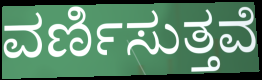
ವರ್ಣಿಸುತ್ತವೆ